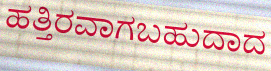
ಹತ್ತಿರವಾಗಬಹುದಾದ